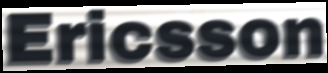
Ericsson